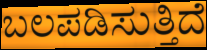
ಬಲಪಡಿಸುತ್ತಿದೆ